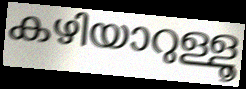
കഴിയാറുള്ളൂ